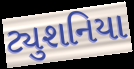
ટ્યુશનિયા